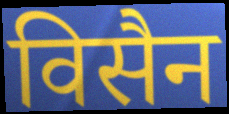
विसैन